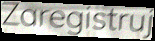
Zaregistruj